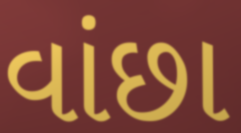
વાંછા